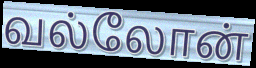
வல்லோன்